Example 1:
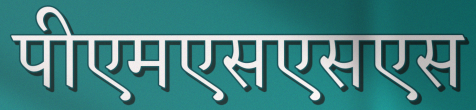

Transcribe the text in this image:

पीएमएसएसएस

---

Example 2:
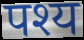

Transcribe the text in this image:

पश्य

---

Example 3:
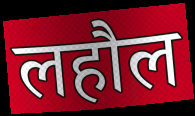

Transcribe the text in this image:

लहौल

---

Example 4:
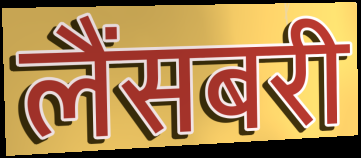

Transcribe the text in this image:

लैंसबरी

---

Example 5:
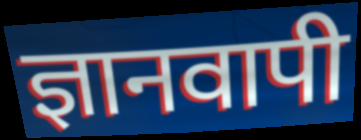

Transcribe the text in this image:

ज्ञानवापी